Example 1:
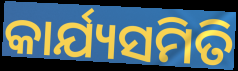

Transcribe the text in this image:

କାର୍ଯ୍ୟସମିତି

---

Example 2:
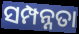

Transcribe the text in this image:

ସମ୍ପନ୍ନତା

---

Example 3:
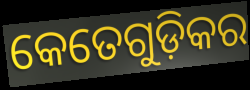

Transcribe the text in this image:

କେତେଗୁଡ଼ିକର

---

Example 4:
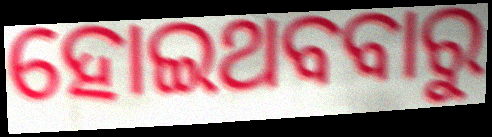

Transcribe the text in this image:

ହୋଇଥବବାରୁ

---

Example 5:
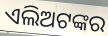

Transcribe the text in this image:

ଏଲିଅଟଙ୍କର